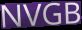
NVGB